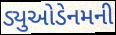
ડ્યુઓડેનમની